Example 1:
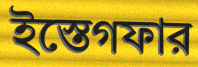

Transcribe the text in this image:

ইস্তেগফার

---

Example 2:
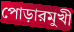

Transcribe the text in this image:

পোড়ারমুখী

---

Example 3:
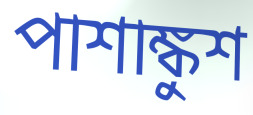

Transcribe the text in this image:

পাশাঙ্কুশ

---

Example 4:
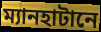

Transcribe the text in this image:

ম্যানহাটানে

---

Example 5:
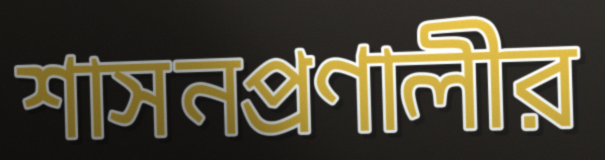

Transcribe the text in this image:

শাসনপ্রণালীর